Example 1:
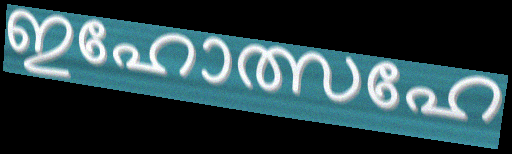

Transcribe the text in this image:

ഇഹോത്സഹേ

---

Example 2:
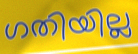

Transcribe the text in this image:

ഗതിയില്ല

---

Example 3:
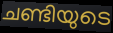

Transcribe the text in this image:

ചണ്ടിയുടെ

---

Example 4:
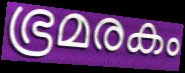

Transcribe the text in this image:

ഭ്രമരകം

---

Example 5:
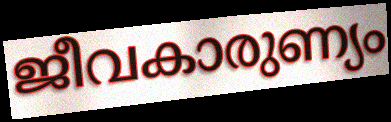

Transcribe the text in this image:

ജീവകാരുണ്യം